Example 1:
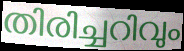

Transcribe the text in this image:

തിരിച്ചറിവും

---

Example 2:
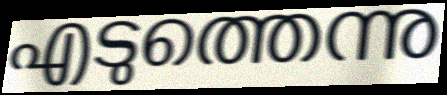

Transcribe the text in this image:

എടുത്തെന്നു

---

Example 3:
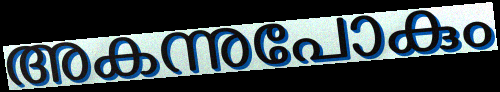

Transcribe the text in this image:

അകന്നുപോകും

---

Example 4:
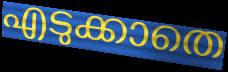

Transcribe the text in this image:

എടുക്കാതെ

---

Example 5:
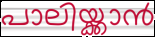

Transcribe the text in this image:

പാലിയ്ക്കാൻ